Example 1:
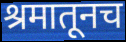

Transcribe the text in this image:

श्रमातूनच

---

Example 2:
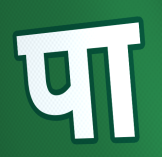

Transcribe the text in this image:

पा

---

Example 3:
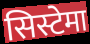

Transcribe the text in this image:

सिस्टेमा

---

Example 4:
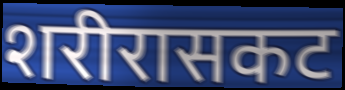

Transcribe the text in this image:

शरीरासकट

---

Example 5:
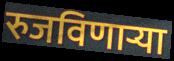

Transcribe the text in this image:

रुजविणाऱ्या